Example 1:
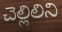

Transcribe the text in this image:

చెల్లిలిని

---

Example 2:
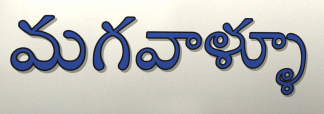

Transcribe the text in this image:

మగవాళ్ళూ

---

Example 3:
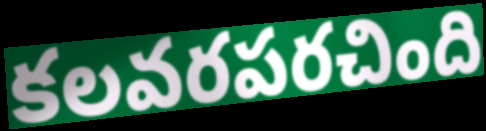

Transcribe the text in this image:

కలవరపరచింది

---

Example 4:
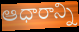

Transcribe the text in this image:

ఆధారాన్ని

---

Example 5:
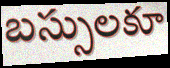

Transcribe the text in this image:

బస్సులకూ